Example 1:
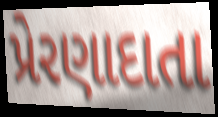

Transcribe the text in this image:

પ્રેરણાદાતા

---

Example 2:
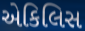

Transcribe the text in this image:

એકિલિસ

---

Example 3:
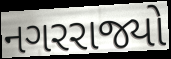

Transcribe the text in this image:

નગરરાજ્યો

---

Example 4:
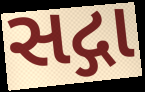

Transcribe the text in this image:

સદ્ગા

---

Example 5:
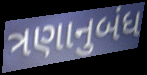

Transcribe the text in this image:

ત્રણાનુબંધ